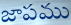
జాపము